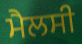
ਮੈਲਸੀ